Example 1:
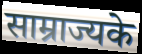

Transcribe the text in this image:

साम्राज्यके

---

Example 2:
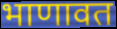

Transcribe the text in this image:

भाणावत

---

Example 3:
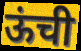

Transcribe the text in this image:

ऊंची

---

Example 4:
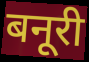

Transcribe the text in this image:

बनूरी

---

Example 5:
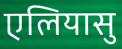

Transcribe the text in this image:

एलियासु